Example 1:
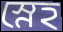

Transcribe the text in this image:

স্নেহ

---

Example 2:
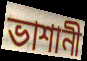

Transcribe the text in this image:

ভাশানী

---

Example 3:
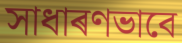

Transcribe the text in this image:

সাধাৰণভাবে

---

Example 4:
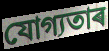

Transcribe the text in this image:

যোগ্যতাৰ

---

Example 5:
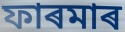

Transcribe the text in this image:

ফাৰমাৰ